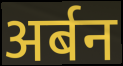
अर्बन